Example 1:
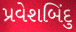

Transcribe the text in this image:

પ્રવેશબિંદુ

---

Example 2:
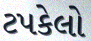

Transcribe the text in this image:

ટપકેલો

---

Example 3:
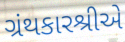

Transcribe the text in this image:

ગ્રંથકારશ્રીએ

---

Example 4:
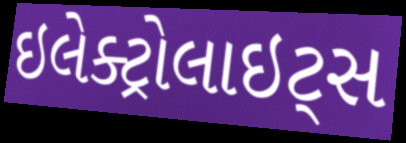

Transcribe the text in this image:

ઇલેક્ટ્રોલાઇટ્સ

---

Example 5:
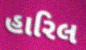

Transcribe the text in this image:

હારિલ